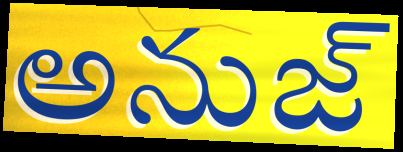
అనుజ్